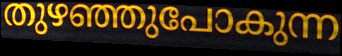
തുഴഞ്ഞുപോകുന്ന